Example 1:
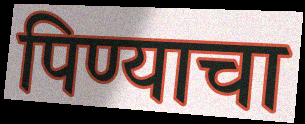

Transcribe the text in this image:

पिण्याचा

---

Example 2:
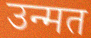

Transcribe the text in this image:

उन्मत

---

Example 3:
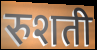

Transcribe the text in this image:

रुशती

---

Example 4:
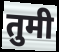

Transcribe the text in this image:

तुमी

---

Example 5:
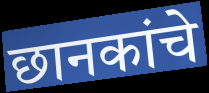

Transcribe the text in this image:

छानकांचे